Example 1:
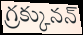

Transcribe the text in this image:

గ్రక్కునన్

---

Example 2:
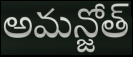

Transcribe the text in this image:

అమన్జోత్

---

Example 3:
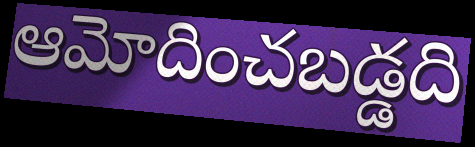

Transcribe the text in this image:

ఆమోదించబడ్డది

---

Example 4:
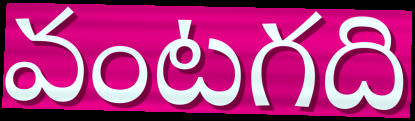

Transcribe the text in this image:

వంటగది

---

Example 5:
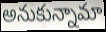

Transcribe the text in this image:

అనుకున్నామా